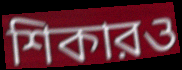
শিকারও